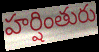
హర్షింతురు